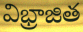
విభ్రాజిత